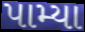
પામ્યા